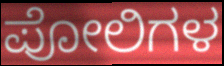
ಪೋಲಿಗಳ